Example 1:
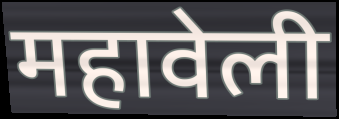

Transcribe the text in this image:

महावेली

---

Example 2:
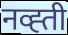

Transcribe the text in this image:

नव्ह्ती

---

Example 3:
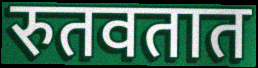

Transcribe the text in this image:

रुतवतात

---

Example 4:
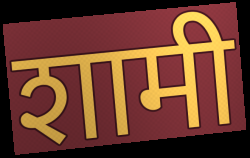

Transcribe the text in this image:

शामी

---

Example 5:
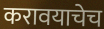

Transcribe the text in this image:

करावयाचेच